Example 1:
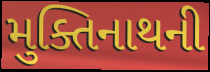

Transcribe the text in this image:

મુક્તિનાથની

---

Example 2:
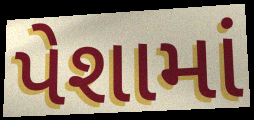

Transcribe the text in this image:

પેશામાં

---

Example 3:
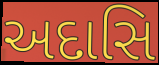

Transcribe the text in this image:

અદાસિ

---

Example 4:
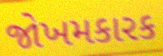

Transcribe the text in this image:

જોખમકારક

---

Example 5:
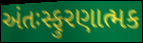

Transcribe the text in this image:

અંતઃસ્ફુરણાત્મક